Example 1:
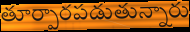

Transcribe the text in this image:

తూర్పారపడుతున్నారు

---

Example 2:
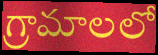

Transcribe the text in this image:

గ్రామాలలో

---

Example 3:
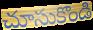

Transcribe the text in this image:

చూసుకొండి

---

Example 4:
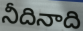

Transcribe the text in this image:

నీదినాది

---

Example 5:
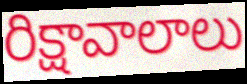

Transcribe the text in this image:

రిక్షావాలాలు